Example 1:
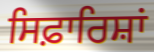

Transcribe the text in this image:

ਸਿਫ਼ਾਰਿਸ਼ਾਂ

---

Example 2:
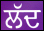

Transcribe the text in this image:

ਲੱਦ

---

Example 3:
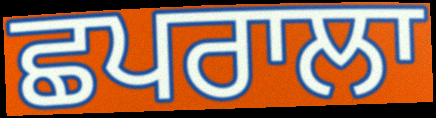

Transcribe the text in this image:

ਛਪਰਾਲਾ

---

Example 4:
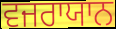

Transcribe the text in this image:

ਵਜਰਾਯਾਨ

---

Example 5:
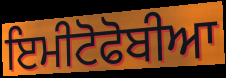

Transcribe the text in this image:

ਇਮੀਟੋਫੋਬੀਆ